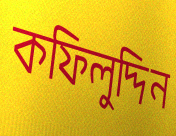
কফিলুদ্দিন